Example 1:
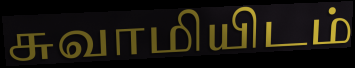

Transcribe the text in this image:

சுவாமியிடம்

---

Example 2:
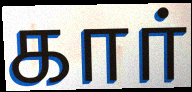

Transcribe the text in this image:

கார்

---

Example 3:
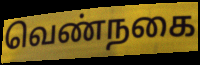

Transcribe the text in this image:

வெண்நகை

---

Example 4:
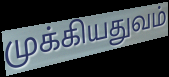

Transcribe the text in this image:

முக்கியதுவம்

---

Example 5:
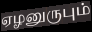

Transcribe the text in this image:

ஏழனுருபும்